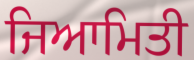
ਜਿਆਮਿਤੀ